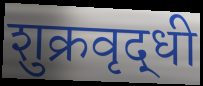
शुक्रवृद्धी